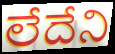
లేదేని